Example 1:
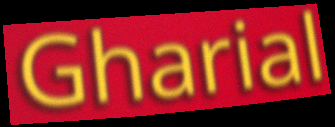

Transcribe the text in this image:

Gharial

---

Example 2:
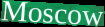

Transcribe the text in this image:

Moscow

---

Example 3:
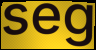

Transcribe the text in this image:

seg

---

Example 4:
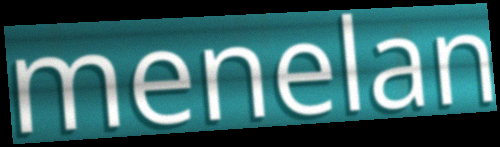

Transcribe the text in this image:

menelan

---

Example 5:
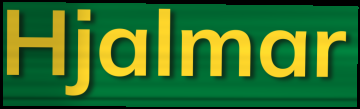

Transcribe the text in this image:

Hjalmar